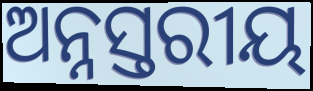
ଅନ୍ନସ୍ତରୀୟ